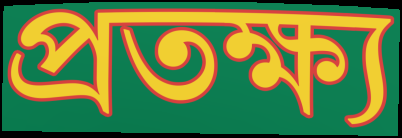
প্ৰতক্ষ্য